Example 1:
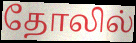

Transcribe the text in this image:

தோலில்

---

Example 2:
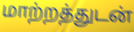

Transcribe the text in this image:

மாற்றத்துடன்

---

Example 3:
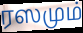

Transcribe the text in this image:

ரஸமும்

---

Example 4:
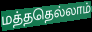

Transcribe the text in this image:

மத்ததெல்லாம்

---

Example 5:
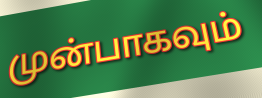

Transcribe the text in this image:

முன்பாகவும்